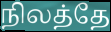
நிலத்தே